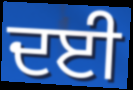
ਦਈ